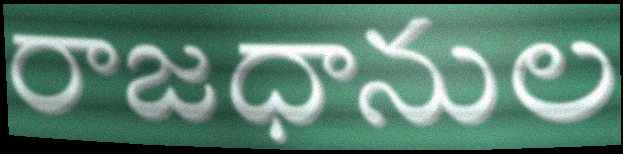
రాజధానుల